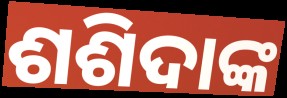
ଶଶିଦାଙ୍କ